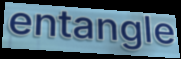
entangle